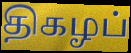
திகழப்